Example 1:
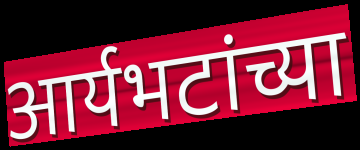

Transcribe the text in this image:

आर्यभटांच्या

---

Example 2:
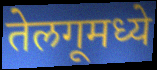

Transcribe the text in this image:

तेलगूमध्ये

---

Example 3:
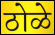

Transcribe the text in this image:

ठोळे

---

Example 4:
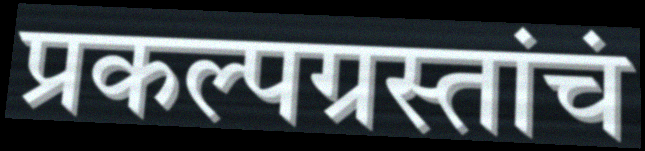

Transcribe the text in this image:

प्रकल्पग्रस्तांचं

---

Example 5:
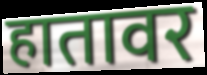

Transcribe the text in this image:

हातावर